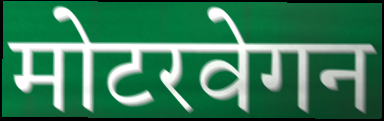
मोटरवेगन